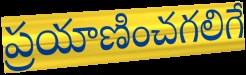
ప్రయాణించగలిగే